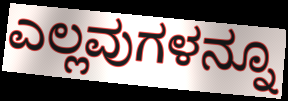
ಎಲ್ಲವುಗಳನ್ನೂ